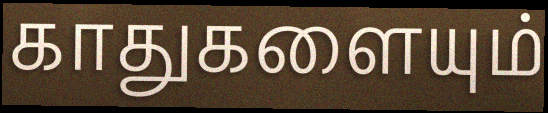
காதுகளையும்